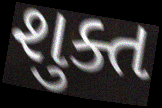
શુક્ત